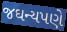
જઘન્યપણે